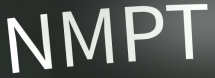
NMPT